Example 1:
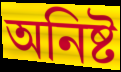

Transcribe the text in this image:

অনিষ্ট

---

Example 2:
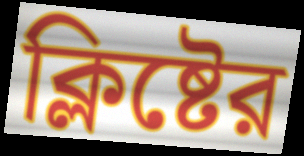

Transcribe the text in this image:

ক্লিষ্টের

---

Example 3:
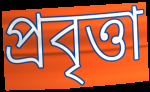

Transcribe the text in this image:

প্রবৃত্তা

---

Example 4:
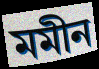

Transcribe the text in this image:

মমীন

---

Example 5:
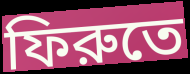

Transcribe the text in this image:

ফিরুতে